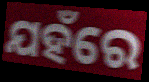
ଯହଁରେ